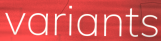
variants